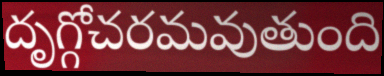
దృగ్గోచరమవుతుంది